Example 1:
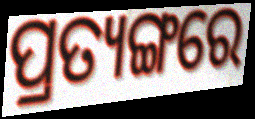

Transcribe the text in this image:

ପ୍ରତ୍ୟଙ୍ଗରେ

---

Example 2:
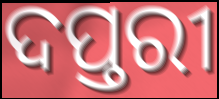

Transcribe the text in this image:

ଦପ୍ତରୀ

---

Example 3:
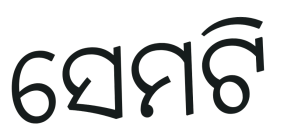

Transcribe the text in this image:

ସେମଟି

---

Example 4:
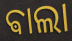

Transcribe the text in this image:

ଵାଲା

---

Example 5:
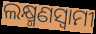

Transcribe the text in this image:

ଲକ୍ଷ୍ମଣସ୍ଵାମୀ